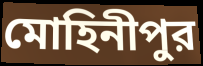
মোহিনীপুর